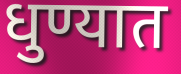
धुण्यात